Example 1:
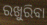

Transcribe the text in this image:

ରଖୁରିବା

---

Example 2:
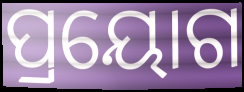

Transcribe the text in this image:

ପ୍ରୟୋଗ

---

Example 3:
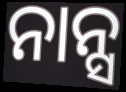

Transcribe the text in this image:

ନାନ୍ସ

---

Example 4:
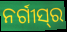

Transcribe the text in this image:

ନର୍ଗୀସ୍‍ର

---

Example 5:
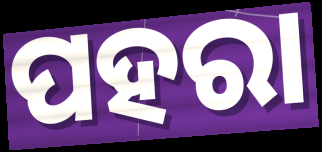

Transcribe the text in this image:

ପହରା